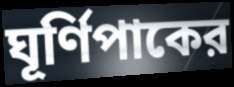
ঘূর্ণিপাকের